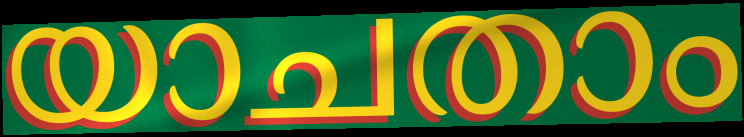
യാചതാം